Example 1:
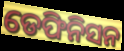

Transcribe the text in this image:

ଡେଫିନିସନ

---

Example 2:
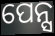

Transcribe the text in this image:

ପେନ୍ସ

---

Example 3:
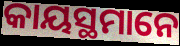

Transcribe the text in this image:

କାୟସ୍ଥମାନେ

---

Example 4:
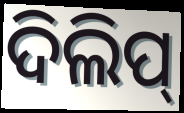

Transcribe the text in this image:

ଦିଲିପ୍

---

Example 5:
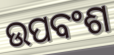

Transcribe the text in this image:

ଉପବଂଶ